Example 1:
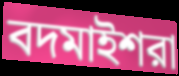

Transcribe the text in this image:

বদমাইশরা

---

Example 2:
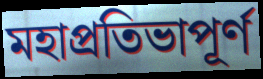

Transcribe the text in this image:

মহাপ্রতিভাপূর্ণ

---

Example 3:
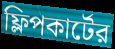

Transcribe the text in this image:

ফ্লিপকার্টের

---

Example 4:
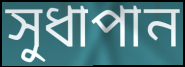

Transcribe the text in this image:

সুধাপান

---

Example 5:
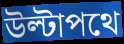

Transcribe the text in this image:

উল্টাপথে